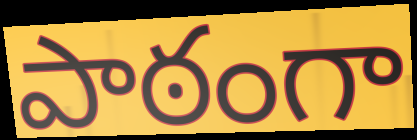
పాఠంగా